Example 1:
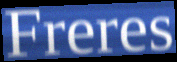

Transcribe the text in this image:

Freres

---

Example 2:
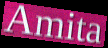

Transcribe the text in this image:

Amita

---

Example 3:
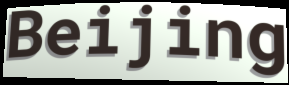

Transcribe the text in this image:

Beijing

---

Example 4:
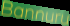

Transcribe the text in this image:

Bannuru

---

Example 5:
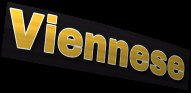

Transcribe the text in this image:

Viennese